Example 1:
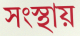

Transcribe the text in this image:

সংস্থায়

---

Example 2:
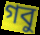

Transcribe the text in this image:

গবু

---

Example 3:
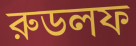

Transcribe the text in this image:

রুডলফ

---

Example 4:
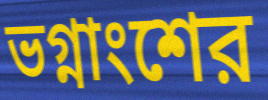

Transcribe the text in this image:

ভগ্নাংশের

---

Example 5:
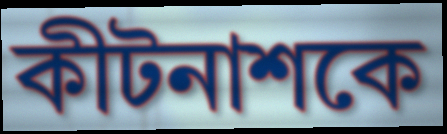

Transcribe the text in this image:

কীটনাশকে